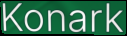
Konark